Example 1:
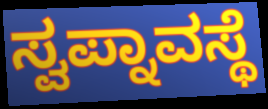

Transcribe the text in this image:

ಸ್ವಪ್ನಾವಸ್ಥೆ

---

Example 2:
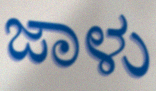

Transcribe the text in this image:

ಜಾಳು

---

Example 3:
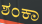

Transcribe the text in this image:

ಶಂಕಾ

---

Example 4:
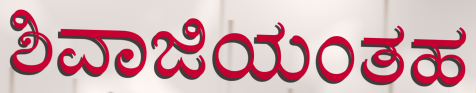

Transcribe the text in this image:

ಶಿವಾಜಿಯಂತಹ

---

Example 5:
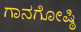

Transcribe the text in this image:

ಗಾನಗೋಷ್ಠಿ